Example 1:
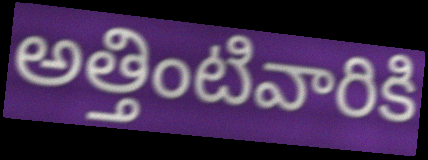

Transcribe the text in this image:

అత్తింటివారికి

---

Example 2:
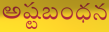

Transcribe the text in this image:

అష్టబంధన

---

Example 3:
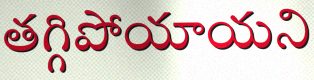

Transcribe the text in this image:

తగ్గిపోయాయని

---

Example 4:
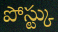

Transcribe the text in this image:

పోస్ట్కు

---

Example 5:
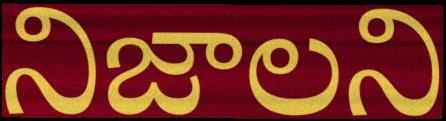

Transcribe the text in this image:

నిజాలని